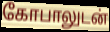
கோபாலுடன்